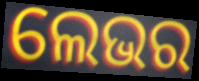
ଲେଭର